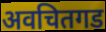
अवचितगड